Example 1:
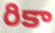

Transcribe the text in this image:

రికా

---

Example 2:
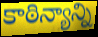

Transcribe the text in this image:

కాఠిన్యాన్ని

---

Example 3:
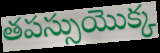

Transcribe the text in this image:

తపస్సుయొక్క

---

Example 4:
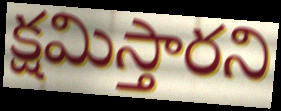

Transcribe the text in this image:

క్షమిస్తారని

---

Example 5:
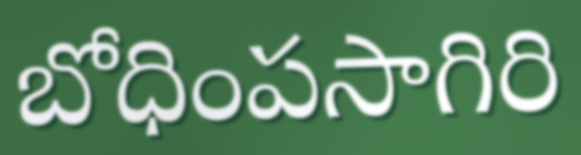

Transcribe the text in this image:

బోధింపసాగిరి